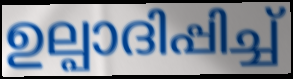
ഉല്പാദിപ്പിച്ച്